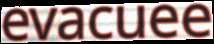
evacuee